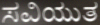
ಸವಿಯುತ